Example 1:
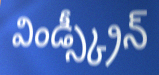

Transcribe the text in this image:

విండ్స్క్రీన్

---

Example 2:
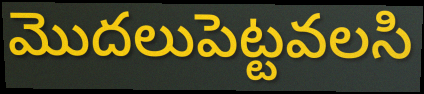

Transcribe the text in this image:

మొదలుపెట్టవలసి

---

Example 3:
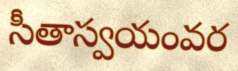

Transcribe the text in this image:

సీతాస్వయంవర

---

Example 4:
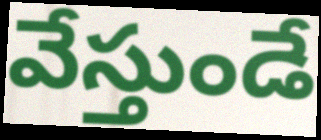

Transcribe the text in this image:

వేస్తుండే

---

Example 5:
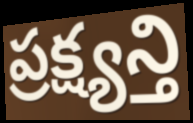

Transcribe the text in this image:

ప్రక్ష్యన్తి